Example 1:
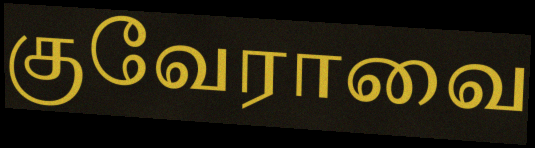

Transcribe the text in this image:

குவேராவை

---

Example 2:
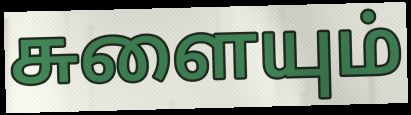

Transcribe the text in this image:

சுளையும்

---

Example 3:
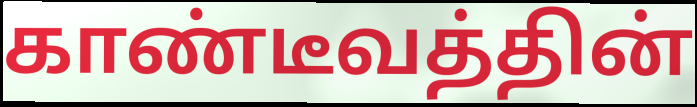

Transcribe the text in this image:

காண்டீவத்தின்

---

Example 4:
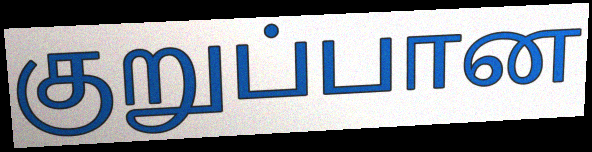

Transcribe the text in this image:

குறுப்பான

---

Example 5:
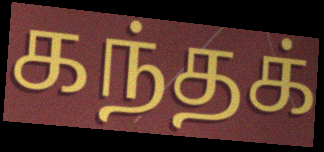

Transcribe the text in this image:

கந்தக்